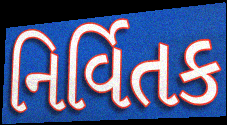
નિર્વિતક